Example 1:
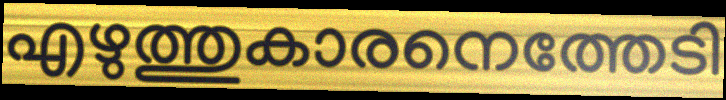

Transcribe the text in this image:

എഴുത്തുകാരനെത്തേടി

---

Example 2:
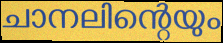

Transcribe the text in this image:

ചാനലിന്റെയും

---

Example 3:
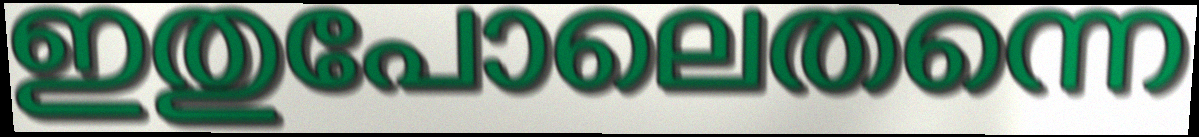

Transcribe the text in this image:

ഇതുപോലെതന്നെ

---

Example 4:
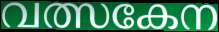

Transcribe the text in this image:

വത്സകേന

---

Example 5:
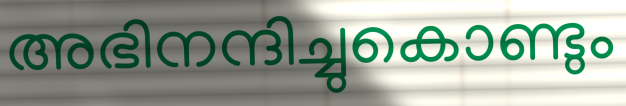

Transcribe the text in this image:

അഭിനന്ദിച്ചുകൊണ്ടും